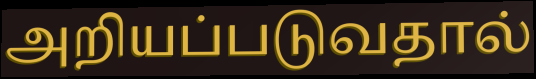
அறியப்படுவதால்